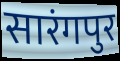
सारंगपुर